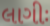
લાગીઃ